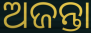
ଅଜନ୍ତା